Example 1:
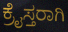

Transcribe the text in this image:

ಕ್ರೈಸ್ತರಾಗಿ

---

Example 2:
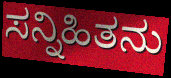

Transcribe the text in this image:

ಸನ್ನಿಹಿತನು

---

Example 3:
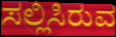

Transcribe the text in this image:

ಸಲ್ಲಿಸಿರುವ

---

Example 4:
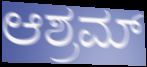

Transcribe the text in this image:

ಆಶ್ರಮ್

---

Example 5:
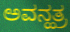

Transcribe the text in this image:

ಅವನ್ಹತ್ರ